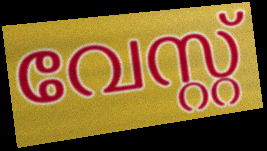
വേസ്റ്റ്